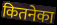
कितनेका